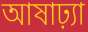
আষাঢ়্যা